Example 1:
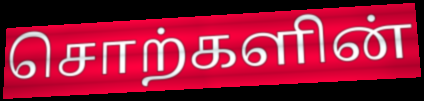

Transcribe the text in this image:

சொற்களின்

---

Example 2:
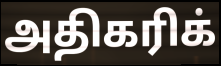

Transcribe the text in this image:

அதிகரிக்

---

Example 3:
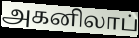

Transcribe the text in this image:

அகனிலாப்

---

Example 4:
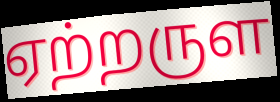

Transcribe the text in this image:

ஏற்றருள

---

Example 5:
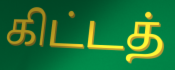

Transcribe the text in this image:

கிட்டத்